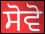
ਸੋਵੋ